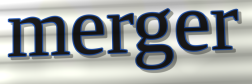
merger